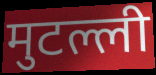
मुटल्ली